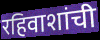
रहिवाशांची